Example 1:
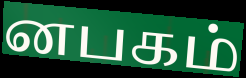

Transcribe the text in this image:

னபகம்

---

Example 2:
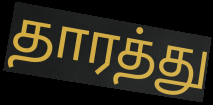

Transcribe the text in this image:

தாரத்து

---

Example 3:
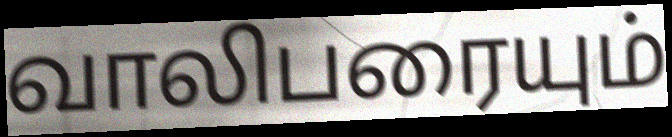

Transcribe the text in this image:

வாலிபரையும்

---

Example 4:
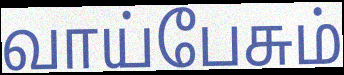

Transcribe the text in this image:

வாய்பேசும்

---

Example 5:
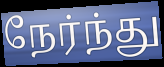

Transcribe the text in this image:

நேர்ந்து